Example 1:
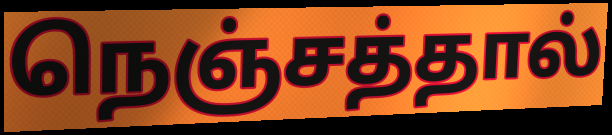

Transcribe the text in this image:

நெஞ்சத்தால்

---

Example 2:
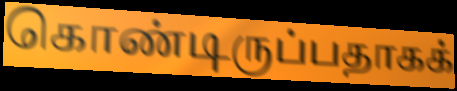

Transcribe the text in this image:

கொண்டிருப்பதாகக்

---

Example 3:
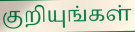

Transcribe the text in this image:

குறியுங்கள்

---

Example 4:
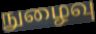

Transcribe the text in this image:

நுழைவு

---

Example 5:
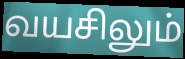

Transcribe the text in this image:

வயசிலும்